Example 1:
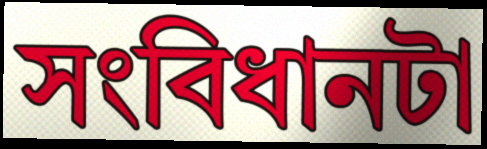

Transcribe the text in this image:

সংবিধানটা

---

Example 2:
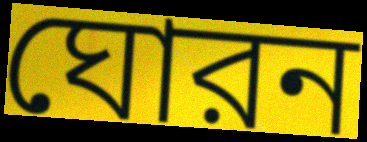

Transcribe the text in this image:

ঘোরন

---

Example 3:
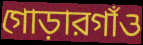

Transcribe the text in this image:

গোড়ারগাঁও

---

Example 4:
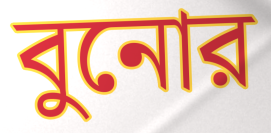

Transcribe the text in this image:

বুনোর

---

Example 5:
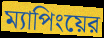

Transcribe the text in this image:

ম্যাপিংয়ের